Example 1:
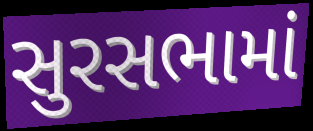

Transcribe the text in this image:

સુરસભામાં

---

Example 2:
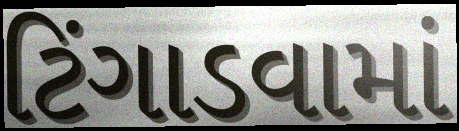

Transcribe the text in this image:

ટિંગાડવામાં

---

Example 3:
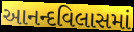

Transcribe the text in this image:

આનન્દવિલાસમાં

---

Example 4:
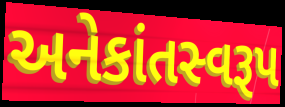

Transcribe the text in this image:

અનેકાંતસ્વરૂપ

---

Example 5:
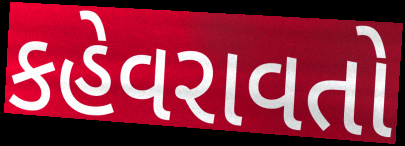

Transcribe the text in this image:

કહેવરાવતો